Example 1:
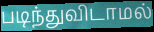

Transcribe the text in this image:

படிந்துவிடாமல்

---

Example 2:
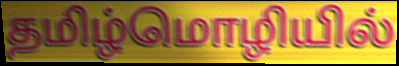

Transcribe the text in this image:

தமிழ்மொழியில்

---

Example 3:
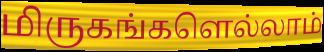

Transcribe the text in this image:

மிருகங்களெல்லாம்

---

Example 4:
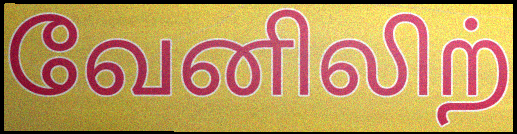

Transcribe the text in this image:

வேனிலிற்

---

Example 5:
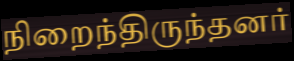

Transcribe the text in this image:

நிறைந்திருந்தனர்